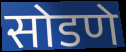
सोडणे